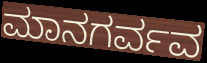
ಮಾನಗರ್ವವ